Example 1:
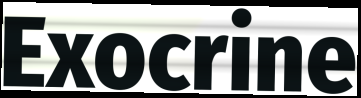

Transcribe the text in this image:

Exocrine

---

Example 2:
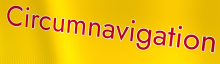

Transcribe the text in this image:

Circumnavigation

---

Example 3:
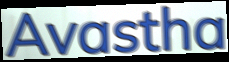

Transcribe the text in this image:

Avastha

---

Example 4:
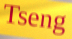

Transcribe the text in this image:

Tseng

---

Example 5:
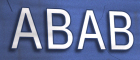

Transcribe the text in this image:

ABAB